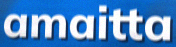
amaitta